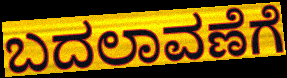
ಬದಲಾವಣೆಗೆ